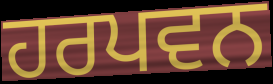
ਹਰਪਵਨ